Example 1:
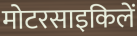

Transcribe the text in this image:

मोटरसाइकिलें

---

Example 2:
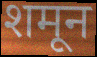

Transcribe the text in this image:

शमून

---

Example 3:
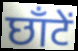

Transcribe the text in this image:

छाँटें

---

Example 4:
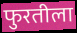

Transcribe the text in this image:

फुरतीला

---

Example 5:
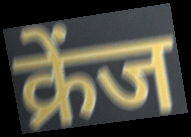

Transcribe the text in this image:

क्रेंज